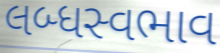
લબ્ધસ્વભાવ